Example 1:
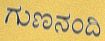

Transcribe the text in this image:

ಗುಣನಂದಿ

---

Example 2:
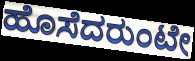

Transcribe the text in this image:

ಹೊಸೆದರುಂಟೇ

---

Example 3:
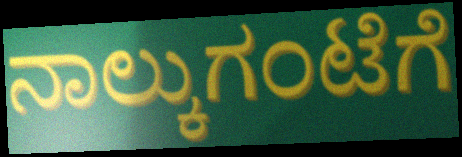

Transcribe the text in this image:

ನಾಲ್ಕುಗಂಟೆಗೆ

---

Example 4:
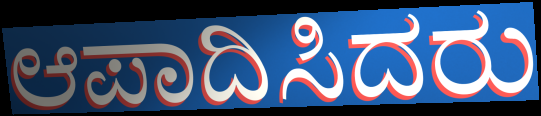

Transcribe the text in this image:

ಆಪಾದಿಸಿದರು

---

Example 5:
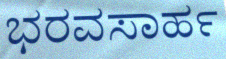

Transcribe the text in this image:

ಭರವಸಾರ್ಹ